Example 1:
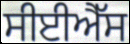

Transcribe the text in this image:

ਸੀਈਐੱਸ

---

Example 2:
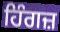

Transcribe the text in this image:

ਹਿੰਗਜ਼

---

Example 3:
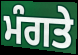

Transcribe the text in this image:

ਮੰਗਤੇ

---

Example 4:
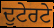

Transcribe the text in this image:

ਦੁਟੇਰਟੇ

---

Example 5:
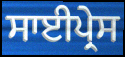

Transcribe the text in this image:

ਸਾਈਪ੍ਰੇਸ